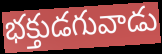
భక్తుడగువాడు